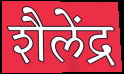
शैलेंद्र